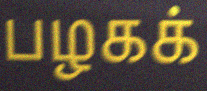
பழகக்